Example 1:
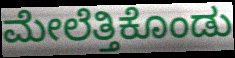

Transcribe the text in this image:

ಮೇಲೆತ್ತಿಕೊಂಡು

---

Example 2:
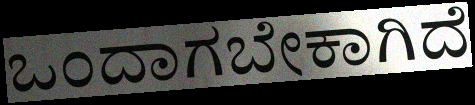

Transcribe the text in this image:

ಒಂದಾಗಬೇಕಾಗಿದೆ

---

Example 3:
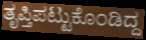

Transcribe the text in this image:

ತೃಪ್ತಿಪಟ್ಟುಕೊಂಡಿದ್ದ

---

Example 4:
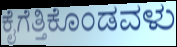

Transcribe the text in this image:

ಕೈಗೆತ್ತಿಕೊಂಡವಳು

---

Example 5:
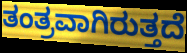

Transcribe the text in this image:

ತಂತ್ರವಾಗಿರುತ್ತದೆ